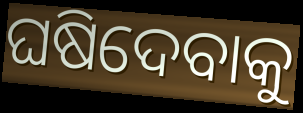
ଘଷିଦେବାକୁ